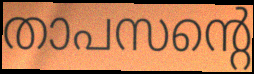
താപസന്റെ